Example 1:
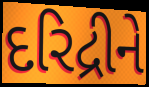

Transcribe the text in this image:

દરિદ્રીને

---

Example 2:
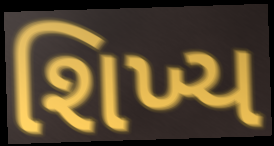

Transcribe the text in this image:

શિખ્ય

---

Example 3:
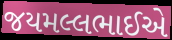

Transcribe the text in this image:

જયમલ્લભાઈએ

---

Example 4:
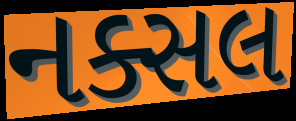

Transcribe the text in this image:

નક્સલ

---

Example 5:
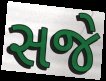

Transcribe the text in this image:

સજે